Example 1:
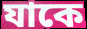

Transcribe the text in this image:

যাকে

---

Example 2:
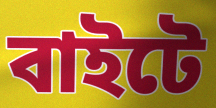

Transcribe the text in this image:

বাইটে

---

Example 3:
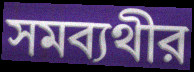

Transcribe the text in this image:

সমব্যথীর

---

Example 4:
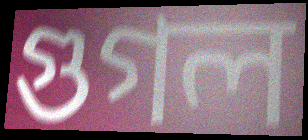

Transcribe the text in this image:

গুগল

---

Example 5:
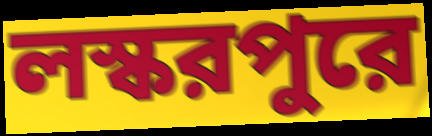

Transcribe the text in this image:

লস্করপুরে